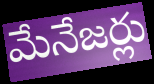
మేనేజర్లు